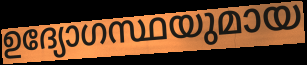
ഉദ്യോഗസ്ഥയുമായ